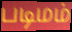
படிமம்